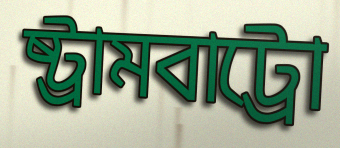
ষ্ট্ৰামবাট্ৰো